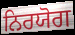
ਨਿਰਯੋਗ